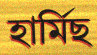
হাৰ্মিছ